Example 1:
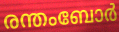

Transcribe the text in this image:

രന്തംബോർ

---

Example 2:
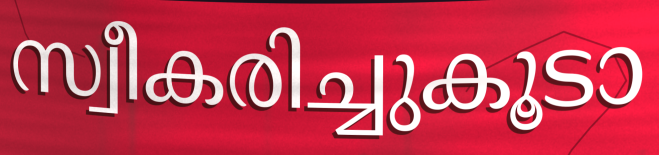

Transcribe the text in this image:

സ്വീകരിച്ചുകൂടാ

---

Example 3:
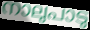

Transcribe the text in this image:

നാലുപാടു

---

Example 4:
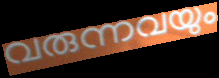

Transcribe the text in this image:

വരുന്നവയും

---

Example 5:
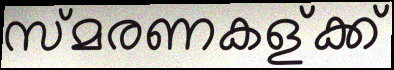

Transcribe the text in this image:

സ്മരണകള്ക്ക്